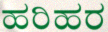
ಹರಿಹರ